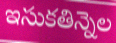
ఇసుకతిన్నెల